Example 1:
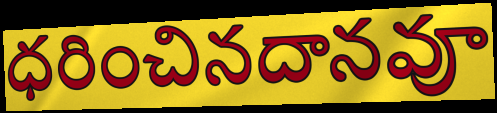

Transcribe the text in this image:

ధరించినదానవూ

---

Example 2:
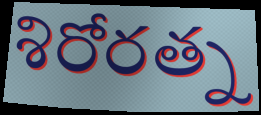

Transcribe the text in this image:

శిరోరత్న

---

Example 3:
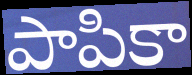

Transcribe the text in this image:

పాపికా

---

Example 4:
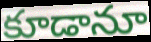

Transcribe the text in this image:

కూడానూ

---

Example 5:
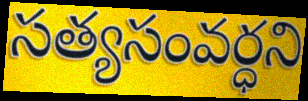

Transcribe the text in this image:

సత్యసంవర్ధని